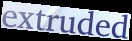
extruded